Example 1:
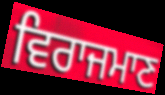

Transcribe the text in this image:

ਵਿਰਾਜਮਾਣ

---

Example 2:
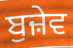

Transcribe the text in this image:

ਬੁਜ਼ੇਵ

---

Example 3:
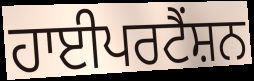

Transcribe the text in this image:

ਹਾਈਪਰਟੈਂਸ਼ਨ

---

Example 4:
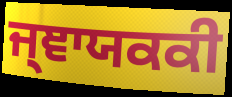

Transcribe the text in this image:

ਜ੍ਞਾਯਕਕੀ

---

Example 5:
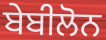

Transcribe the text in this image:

ਬੇਬੀਲੋਨ